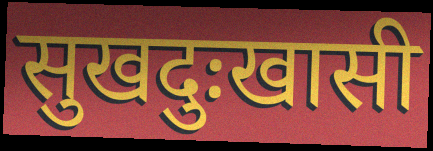
सुखदुःखासी